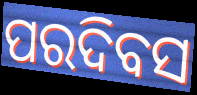
ପରଦିବସ